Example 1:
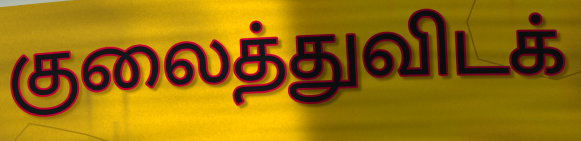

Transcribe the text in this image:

குலைத்துவிடக்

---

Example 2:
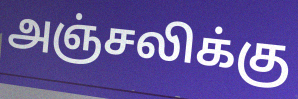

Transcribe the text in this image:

அஞ்சலிக்கு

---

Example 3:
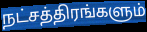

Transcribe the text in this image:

நட்சத்திரங்களும்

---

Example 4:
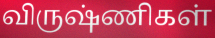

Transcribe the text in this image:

விருஷ்ணிகள்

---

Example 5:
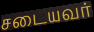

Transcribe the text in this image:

சடையவர்